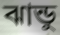
ঝান্ডু